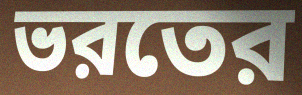
ভরতের